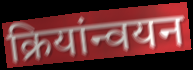
क्रियांन्वयन